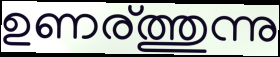
ഉണര്ത്തുന്നു